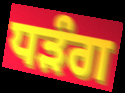
ਧੜੰਗ